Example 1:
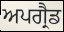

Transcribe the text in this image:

ਅਪਗ੍ਰੈਡ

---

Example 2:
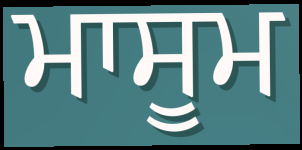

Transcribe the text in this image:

ਮਾਸੂਮ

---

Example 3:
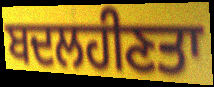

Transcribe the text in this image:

ਬਦਲਹੀਣਤਾ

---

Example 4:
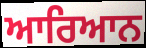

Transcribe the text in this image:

ਆਰਿਆਨ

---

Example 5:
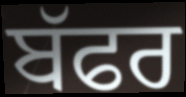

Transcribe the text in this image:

ਬੱਫਰ